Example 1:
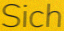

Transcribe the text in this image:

Sich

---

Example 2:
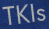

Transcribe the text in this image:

TKIs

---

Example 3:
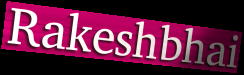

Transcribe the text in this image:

Rakeshbhai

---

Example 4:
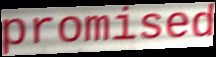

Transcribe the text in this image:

promised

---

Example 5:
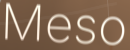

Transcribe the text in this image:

Meso